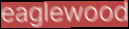
eaglewood